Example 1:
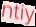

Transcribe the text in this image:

ntiy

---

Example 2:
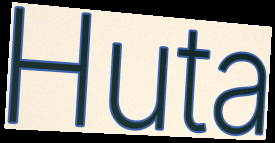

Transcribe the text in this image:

Huta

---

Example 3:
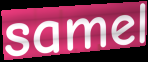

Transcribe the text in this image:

samel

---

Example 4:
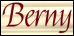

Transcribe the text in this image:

Berny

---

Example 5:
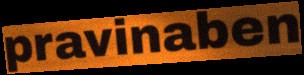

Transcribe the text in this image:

pravinaben